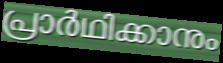
പ്രാർഥിക്കാനും